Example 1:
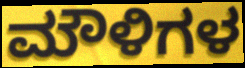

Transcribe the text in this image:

ಮೌಳಿಗಳ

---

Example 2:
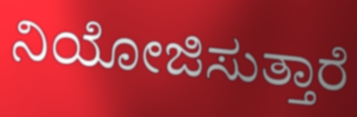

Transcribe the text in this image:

ನಿಯೋಜಿಸುತ್ತಾರೆ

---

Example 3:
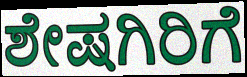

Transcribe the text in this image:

ಶೇಷಗಿರಿಗೆ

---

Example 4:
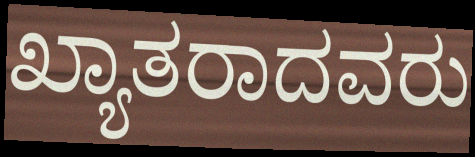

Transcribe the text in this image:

ಖ್ಯಾತರಾದವರು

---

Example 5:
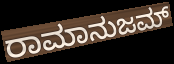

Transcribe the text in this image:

ರಾಮಾನುಜಮ್